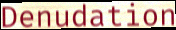
Denudation